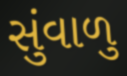
સુંવાળુ